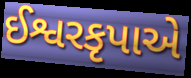
ઈશ્વરકૃપાએ